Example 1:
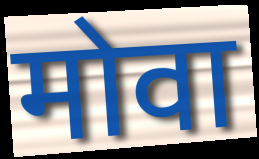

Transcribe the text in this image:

मोवा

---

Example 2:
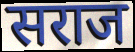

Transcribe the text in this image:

सराज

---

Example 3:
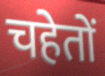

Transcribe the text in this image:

चहेतों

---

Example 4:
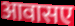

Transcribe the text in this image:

आवासए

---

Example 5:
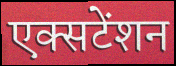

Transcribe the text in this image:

एक्सटेंशन